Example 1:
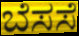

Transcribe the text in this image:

ಬೆಸಸೆ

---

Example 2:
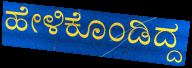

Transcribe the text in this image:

ಹೇಳಿಕೊಂಡಿದ್ದ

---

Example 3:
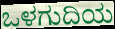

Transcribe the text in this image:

ಒಳಗುದಿಯ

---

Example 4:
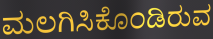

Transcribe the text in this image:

ಮಲಗಿಸಿಕೊಂಡಿರುವ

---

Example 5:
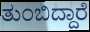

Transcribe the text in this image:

ತುಂಬಿದ್ದಾರೆ